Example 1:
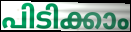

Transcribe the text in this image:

പിടിക്കാം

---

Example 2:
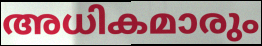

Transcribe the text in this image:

അധികമാരും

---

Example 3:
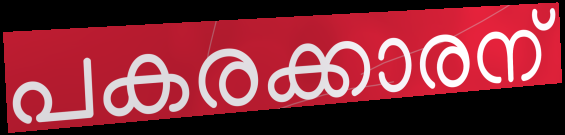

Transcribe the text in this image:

പകരക്കാരന്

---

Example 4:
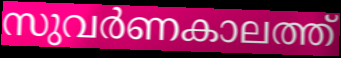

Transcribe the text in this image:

സുവർണകാലത്ത്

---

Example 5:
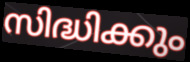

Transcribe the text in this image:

സിദ്ധിക്കും